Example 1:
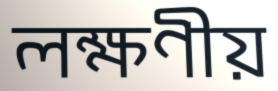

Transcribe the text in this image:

লক্ষণীয়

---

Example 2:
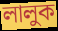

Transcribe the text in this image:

লালুক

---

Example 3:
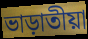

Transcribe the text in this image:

ভাড়াতীয়া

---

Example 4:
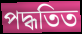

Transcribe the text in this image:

পদ্ধতিত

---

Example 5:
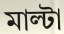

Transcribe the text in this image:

মাল্টা